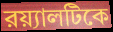
রয়্যালটিকে